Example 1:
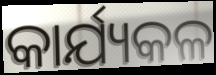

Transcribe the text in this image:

କାର୍ଯ୍ୟକଳ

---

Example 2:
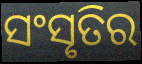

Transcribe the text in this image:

ସଂସୃତିର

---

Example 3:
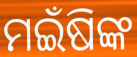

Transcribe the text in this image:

ମଇଁଷିଙ୍କ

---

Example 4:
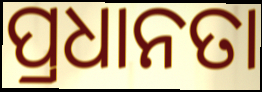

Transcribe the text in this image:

ପ୍ରଧାନତା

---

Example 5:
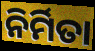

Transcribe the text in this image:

ନିର୍ମିତା